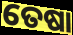
ତେଷା